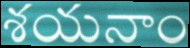
శయనాం